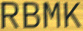
RBMK